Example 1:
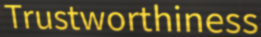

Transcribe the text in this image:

Trustworthiness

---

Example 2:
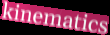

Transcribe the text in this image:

kinematics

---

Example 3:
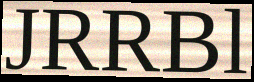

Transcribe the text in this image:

JRRBl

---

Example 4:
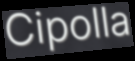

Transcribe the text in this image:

Cipolla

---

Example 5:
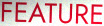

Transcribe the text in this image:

FEATURE